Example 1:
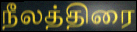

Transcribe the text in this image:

நீலத்திரை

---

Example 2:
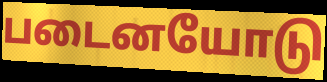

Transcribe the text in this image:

படைனயோடு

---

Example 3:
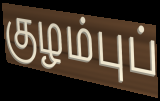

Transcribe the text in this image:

குழம்புப்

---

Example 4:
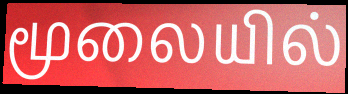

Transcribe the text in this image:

மூலையில்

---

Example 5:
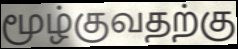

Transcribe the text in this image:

மூழ்குவதற்கு